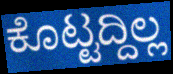
ಕೊಟ್ಟದ್ದಿಲ್ಲ